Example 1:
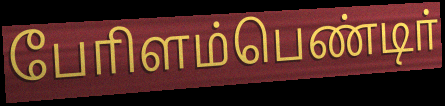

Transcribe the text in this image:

பேரிளம்பெண்டிர்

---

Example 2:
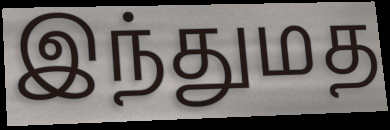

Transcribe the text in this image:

இந்துமத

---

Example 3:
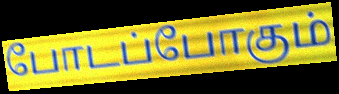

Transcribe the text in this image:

போடப்போகும்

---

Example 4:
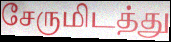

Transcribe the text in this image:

சேருமிடத்து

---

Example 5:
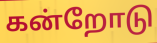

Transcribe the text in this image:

கன்றோடு